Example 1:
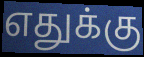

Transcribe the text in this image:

எதுக்கு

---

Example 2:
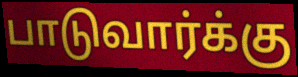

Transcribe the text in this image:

பாடுவார்க்கு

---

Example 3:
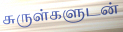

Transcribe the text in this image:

சுருள்களுடன்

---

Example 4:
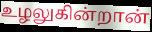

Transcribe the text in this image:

உழலுகின்றான்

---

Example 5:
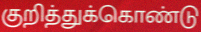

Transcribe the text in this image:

குறித்துக்கொண்டு